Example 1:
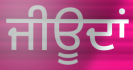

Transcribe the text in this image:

ਜੀਊਦਾਂ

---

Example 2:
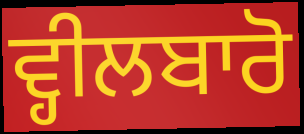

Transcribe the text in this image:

ਵ੍ਹੀਲਬਾਰੋ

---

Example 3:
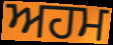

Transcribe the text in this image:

ਅਹਮ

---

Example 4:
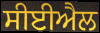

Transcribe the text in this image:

ਸੀਈਐਲ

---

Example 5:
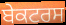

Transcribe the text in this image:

ਬੇਕਟਰਸ